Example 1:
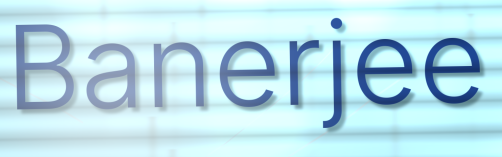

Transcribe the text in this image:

Banerjee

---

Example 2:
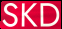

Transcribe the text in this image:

SKD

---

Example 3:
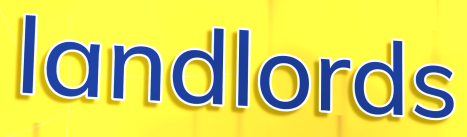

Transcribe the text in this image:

landlords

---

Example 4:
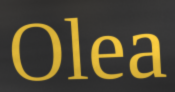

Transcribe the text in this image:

Olea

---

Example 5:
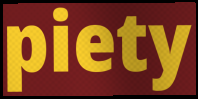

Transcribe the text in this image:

piety